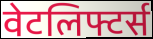
वेटलिफ्टर्स